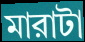
মারাটা